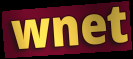
wnet